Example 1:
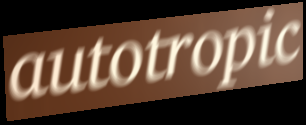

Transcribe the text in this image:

autotropic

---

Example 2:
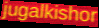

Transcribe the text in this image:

jugalkishor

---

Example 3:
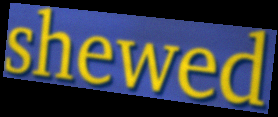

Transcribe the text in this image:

shewed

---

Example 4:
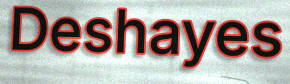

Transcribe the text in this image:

Deshayes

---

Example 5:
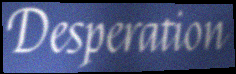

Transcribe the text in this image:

Desperation